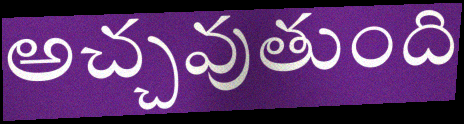
అచ్చవుతుంది